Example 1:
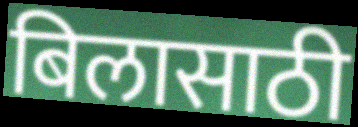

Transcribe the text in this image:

बिलासाठी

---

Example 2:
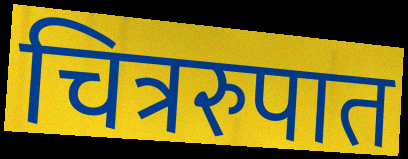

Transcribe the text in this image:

चित्ररुपात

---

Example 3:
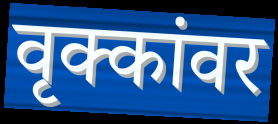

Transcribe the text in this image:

वृक्कांवर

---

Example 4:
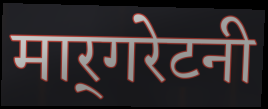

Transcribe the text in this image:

मार्गरेटनी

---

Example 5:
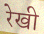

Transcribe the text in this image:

रेखी